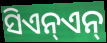
ସିଏନ୍ଏନ୍